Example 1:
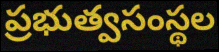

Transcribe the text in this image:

ప్రభుత్వసంస్థల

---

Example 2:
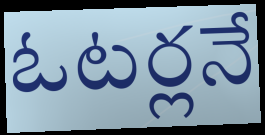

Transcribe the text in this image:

ఓటర్లనే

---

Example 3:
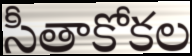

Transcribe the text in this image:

సీతాకోకల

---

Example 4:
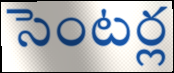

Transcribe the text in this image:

సెంటర్ల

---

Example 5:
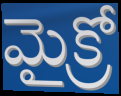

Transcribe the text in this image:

మైక్రో